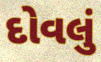
દોવલું